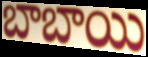
బాబాయి